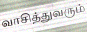
வாசித்துவரும்